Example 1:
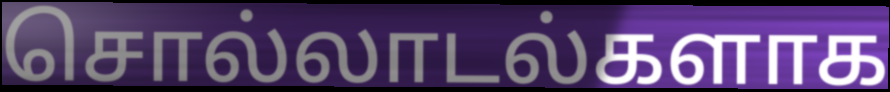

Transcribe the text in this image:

சொல்லாடல்களாக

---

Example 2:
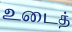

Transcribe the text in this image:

உடைத்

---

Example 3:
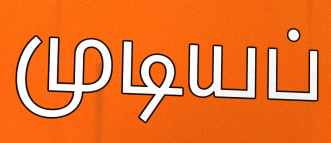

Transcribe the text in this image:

முடியப்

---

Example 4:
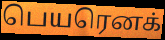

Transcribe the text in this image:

பெயரெனக்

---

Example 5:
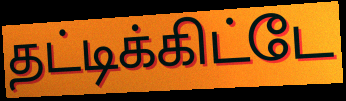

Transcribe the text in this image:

தட்டிக்கிட்டே